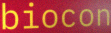
biocon